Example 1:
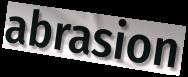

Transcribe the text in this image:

abrasion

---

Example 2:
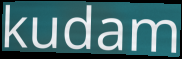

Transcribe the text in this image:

kudam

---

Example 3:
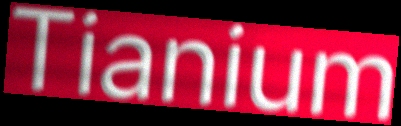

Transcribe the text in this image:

Tianium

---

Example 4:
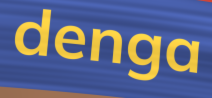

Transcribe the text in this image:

denga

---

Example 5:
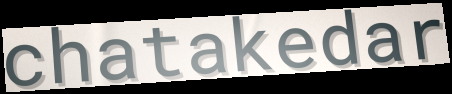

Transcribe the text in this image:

chatakedar